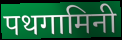
पथगामिनी